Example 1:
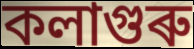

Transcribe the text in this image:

কলাগুৰু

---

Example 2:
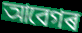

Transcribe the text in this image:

আবেগৰ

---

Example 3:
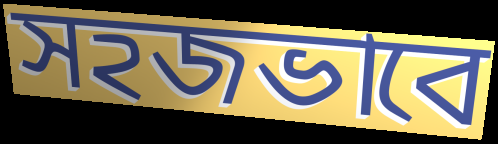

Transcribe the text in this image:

সহজভাবে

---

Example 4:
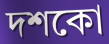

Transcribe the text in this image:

দশকো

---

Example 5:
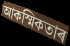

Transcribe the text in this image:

আকস্মিকতাৰ